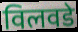
विलवडे